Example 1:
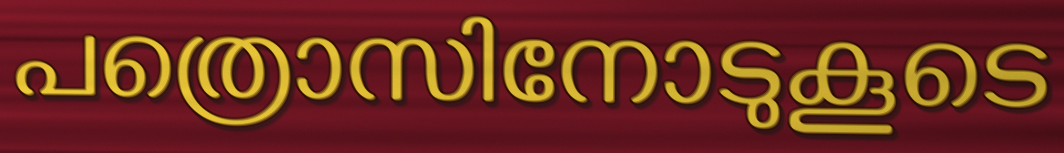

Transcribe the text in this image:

പത്രൊസിനോടുകൂടെ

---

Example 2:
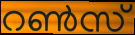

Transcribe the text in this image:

റൺസ്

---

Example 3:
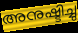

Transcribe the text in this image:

അനുഷ്ടിച്ചു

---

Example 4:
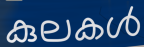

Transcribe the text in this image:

കുലകൾ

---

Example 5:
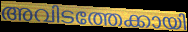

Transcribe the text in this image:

അവിടത്തേക്കായി